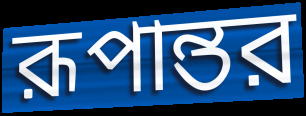
রূপান্তর